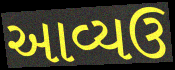
આવ્યઉ